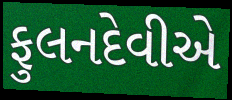
ફુલનદેવીએ